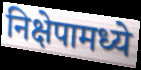
निक्षेपामध्ये